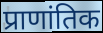
प्राणांतिक